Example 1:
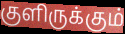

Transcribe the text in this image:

குளிருக்கும்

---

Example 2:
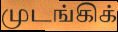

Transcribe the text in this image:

முடங்கிக்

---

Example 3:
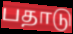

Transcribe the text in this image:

பதாடு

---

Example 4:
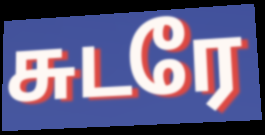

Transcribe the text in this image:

சுடரே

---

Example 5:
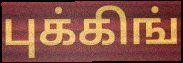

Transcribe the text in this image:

புக்கிங்